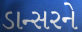
ડાન્સરને